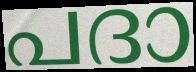
പദാ